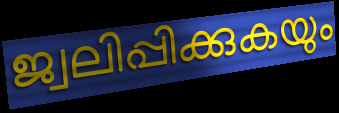
ജ്വലിപ്പിക്കുകയും